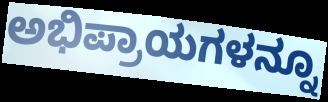
ಅಭಿಪ್ರಾಯಗಳನ್ನೂ